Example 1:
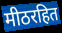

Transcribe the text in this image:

मीठरहित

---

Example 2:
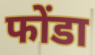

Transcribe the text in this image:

फोंडा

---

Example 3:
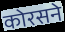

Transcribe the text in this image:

कोरसने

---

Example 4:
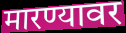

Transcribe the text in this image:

मारण्यावर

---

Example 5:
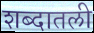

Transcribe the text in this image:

शब्दातली